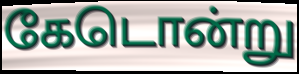
கேடொன்று